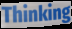
Thinking